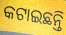
କଟାଇଛନ୍ତି